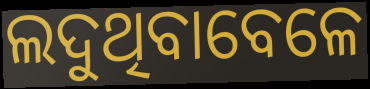
ଲଦୁଥିବାବେଳେ